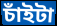
চাঁইটা